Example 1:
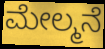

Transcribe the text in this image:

ಮೇಲ್ಮನೆ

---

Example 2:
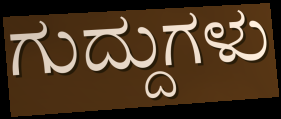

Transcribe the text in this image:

ಗುದ್ದುಗಳು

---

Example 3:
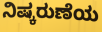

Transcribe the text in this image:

ನಿಷ್ಕರುಣೆಯ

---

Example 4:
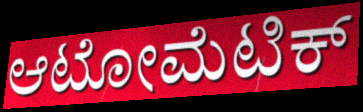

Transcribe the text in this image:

ಆಟೋಮೆಟಿಕ್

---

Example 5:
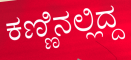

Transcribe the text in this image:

ಕಣ್ಣಿನಲ್ಲಿದ್ದ